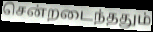
சென்றடைந்ததும்